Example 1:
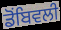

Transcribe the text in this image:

ਡੋਂਬਿਵਲੀ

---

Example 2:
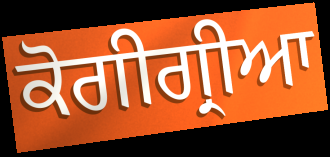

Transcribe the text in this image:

ਕੋਗੀਗ੍ਰੀਆ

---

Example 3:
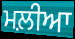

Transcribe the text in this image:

ਮਲ਼ੀਆ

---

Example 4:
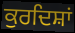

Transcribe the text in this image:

ਕੁਰਦਿਸ਼ਾਂ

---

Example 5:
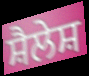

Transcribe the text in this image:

ਸ਼ੈਲੇਸ਼